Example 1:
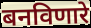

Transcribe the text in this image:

बनविणारे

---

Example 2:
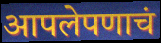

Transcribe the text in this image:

आपलेपणाचं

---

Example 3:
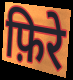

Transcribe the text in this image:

फ़िरे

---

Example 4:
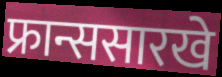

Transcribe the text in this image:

फ्रान्ससारखे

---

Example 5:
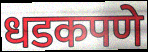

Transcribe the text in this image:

धडकपणे